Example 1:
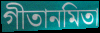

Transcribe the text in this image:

গীতানমিতা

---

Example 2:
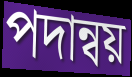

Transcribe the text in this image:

পদান্বয়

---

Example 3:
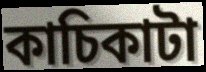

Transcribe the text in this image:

কাচিকাটা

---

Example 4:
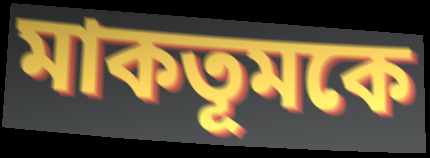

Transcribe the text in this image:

মাকতূমকে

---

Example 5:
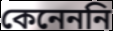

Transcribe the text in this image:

কেনেননি